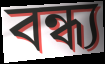
বন্ধ্য